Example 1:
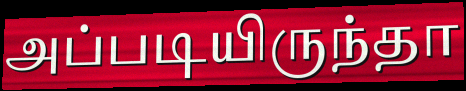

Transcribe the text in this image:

அப்படியிருந்தா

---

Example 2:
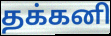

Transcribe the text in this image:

தக்கனி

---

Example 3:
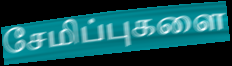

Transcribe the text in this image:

சேமிப்புகளை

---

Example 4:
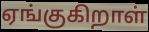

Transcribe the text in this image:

ஏங்குகிறாள்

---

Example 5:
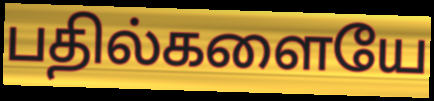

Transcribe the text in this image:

பதில்களையே